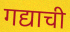
गद्याची